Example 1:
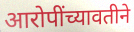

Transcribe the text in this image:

आरोपींच्यावतीने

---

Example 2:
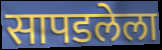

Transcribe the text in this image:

सापडलेला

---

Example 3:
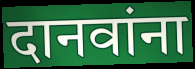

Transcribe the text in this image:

दानवांना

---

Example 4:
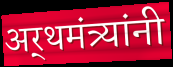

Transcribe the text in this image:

अर्थमंत्र्यांनी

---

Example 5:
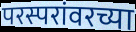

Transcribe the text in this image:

परस्परांवरच्या